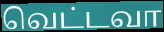
வெட்டவா